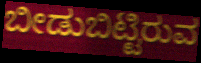
ಬೀಡುಬಿಟ್ಟಿರುವ